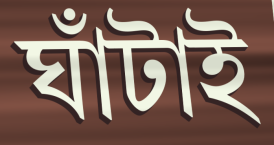
ঘাঁটাই